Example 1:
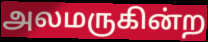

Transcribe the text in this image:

அலமருகின்ற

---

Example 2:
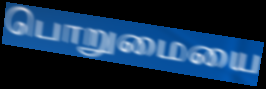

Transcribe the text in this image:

பொறுமையை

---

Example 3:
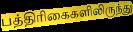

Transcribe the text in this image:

பத்திரிகைகளிலிருந்து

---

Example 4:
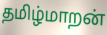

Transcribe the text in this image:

தமிழ்மாறன்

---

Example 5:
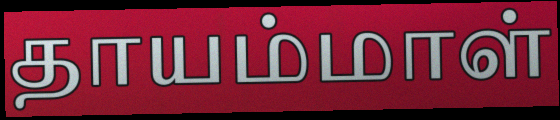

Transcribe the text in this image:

தாயம்மாள்